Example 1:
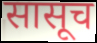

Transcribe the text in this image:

सासूच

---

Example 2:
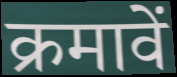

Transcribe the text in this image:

क्रमावें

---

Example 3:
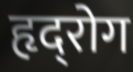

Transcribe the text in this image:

हृद्‍रोग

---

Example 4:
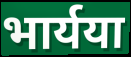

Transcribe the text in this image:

भार्यया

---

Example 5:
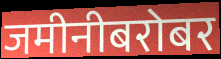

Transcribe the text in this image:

जमीनीबरोबर